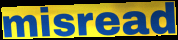
misread